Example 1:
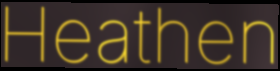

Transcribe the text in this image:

Heathen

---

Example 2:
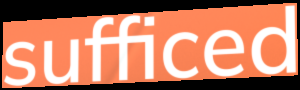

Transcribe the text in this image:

sufficed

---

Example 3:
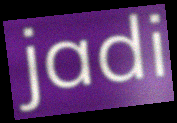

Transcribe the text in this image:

jadi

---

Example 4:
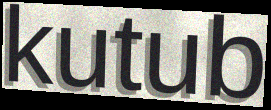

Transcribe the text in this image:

kutub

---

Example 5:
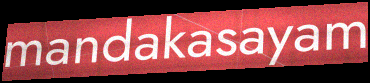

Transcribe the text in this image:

mandakasayam